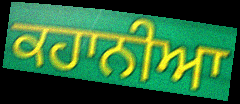
ਕਹਾਨੀਆ